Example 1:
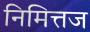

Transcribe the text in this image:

निमित्तज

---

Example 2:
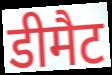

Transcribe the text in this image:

डीमैट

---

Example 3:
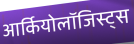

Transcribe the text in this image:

आर्कियोलॉजिस्ट्स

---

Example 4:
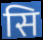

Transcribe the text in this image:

सि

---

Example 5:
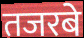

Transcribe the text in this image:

तजरबे